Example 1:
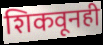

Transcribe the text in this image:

शिकवूनही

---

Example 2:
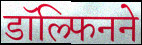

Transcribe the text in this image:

डॉल्फिनने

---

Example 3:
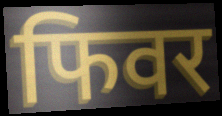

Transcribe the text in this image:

फिवर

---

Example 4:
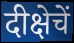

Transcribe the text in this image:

दीक्षेचें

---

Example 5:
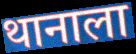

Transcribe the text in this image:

थानाला